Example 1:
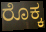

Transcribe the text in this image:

ರೊಕ್ಕ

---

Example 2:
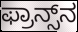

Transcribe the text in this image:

ಫ್ರಾನ್ಸ್‌ನ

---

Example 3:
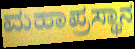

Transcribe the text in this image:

ಮಹಾಪ್ರಸ್ಥಾನ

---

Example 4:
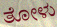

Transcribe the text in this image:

ತೋಳು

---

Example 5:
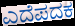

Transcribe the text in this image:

ಎದೆಪದಕ